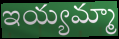
ఇయ్యమ్మా